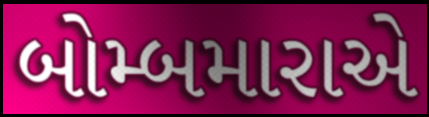
બોમ્બમારાએ